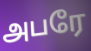
அபரே